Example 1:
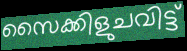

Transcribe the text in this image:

സൈക്കിളുചവിട്ട്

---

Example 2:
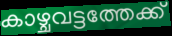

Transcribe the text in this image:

കാഴ്ചവട്ടത്തേക്ക്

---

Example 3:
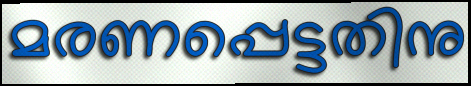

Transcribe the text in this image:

മരണപ്പെട്ടതിനു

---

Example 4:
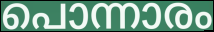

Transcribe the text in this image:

പൊന്നാരം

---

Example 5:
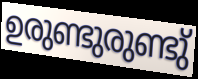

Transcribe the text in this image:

ഉരുണ്ടുരുണ്ടു്